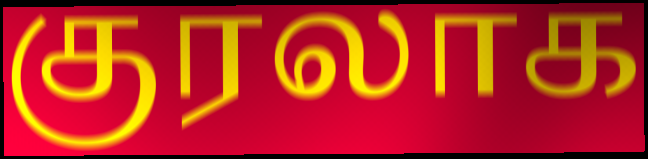
குரலாக